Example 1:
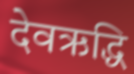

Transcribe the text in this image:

देवऋद्धि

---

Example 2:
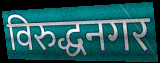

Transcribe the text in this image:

विरुद्धनगर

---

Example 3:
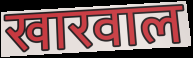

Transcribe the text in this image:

खारवाल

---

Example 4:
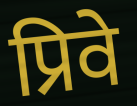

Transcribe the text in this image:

प्रिवे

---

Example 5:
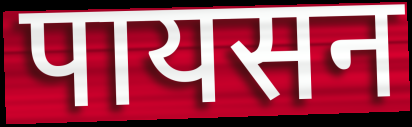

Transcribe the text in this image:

पायसन